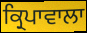
ਕ੍ਰਿਪਾਵਾਲਾ